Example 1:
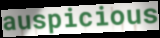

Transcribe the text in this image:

auspicious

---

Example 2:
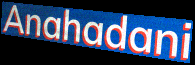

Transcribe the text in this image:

Anahadani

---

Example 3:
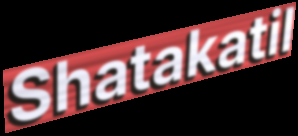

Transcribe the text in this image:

Shatakatil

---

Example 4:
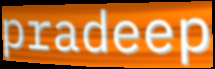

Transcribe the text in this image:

pradeep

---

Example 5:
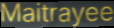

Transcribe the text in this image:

Maitrayee